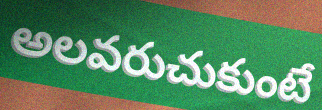
అలవరుచుకుంటే